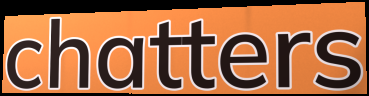
chatters